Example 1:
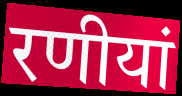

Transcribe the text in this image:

रणीयां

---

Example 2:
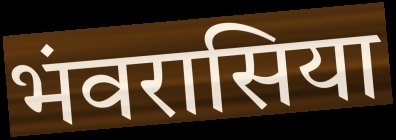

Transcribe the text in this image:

भंवरासिया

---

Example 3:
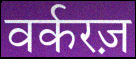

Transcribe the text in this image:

वर्करज़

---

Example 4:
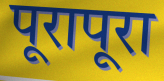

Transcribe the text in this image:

पूरापूरा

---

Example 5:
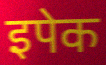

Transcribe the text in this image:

इपेक